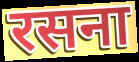
रसना